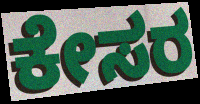
ಕೇಸರ